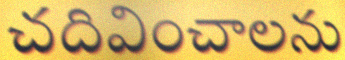
చదివించాలను